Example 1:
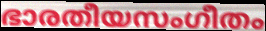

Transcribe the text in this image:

ഭാരതീയസംഗീതം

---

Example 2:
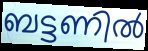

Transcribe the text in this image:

ബട്ടണിൽ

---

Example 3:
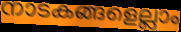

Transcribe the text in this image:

നാടകങ്ങളെല്ലാം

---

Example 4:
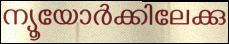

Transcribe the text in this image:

ന്യൂയോർക്കിലേക്കു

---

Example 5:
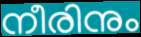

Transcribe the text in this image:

നീരിനും